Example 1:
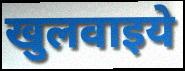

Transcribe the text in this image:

खुलवाइये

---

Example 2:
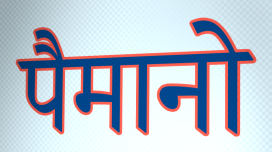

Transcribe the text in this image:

पैमानो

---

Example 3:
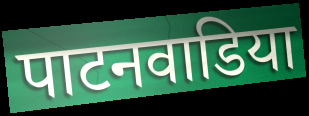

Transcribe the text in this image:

पाटनवाडिया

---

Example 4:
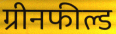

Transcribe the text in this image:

ग्रीनफील्‍ड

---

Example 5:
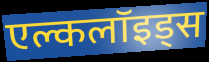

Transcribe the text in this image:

एल्कलॉइड्स